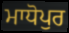
ਮਾਧੋਪੁਰ